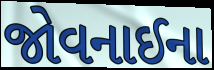
જોવનાઈના